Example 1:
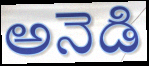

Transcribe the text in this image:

అనెడి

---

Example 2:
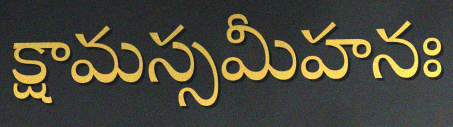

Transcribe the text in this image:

క్షామస్సమీహనః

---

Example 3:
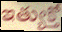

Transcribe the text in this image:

ఇత్యుక్తో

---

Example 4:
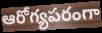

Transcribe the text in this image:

ఆరోగ్యపరంగా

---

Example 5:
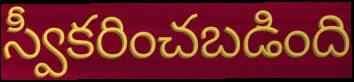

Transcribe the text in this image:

స్వీకరించబడింది